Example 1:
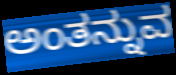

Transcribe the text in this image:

ಅಂತನ್ನುವ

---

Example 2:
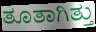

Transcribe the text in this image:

ತೂತಾಗಿತ್ತು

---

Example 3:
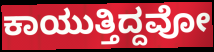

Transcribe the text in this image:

ಕಾಯುತ್ತಿದ್ದವೋ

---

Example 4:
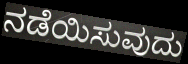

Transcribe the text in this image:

ನಡೆಯಿಸುವುದು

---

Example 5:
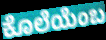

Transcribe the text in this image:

ಕೊಲೆಯೆಂಬ